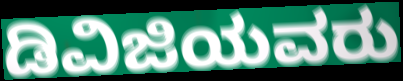
ಡಿವಿಜಿಯವರು